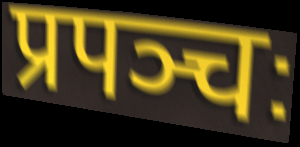
प्रपञ्चः